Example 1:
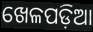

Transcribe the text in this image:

ଖେଳପଡ଼ିଆ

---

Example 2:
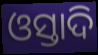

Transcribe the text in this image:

ଓସ୍ତାଦି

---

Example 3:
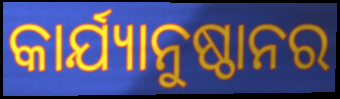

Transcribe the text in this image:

କାର୍ଯ୍ୟାନୁଷ୍ଠାନର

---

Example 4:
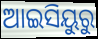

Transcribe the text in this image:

ଆଇସିୟୁରୁ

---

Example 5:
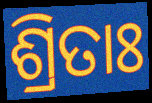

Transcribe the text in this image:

ଶ୍ରିତାଃ